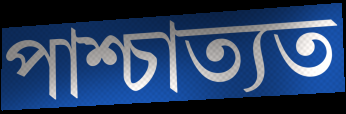
পাশ্চাত্যত